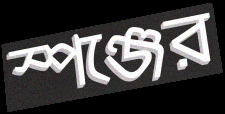
স্পঞ্জের